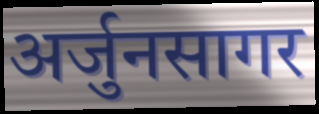
अर्जुनसागर